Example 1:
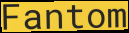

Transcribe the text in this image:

Fantom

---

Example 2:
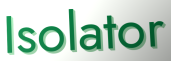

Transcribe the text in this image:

Isolator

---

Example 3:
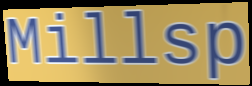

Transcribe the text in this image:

Millsp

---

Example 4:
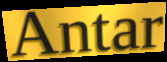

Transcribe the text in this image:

Antar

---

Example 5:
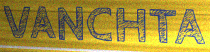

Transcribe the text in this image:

VANCHTA